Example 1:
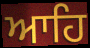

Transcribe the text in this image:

ਆਹਿ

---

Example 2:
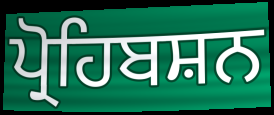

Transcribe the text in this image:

ਪ੍ਰੋਹਿਬਸ਼ਨ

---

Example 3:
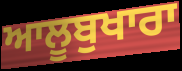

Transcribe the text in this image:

ਆਲੂਬੁਖਾਰਾ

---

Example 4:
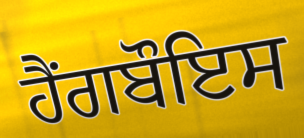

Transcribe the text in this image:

ਹੈਂਗਬੌਇਸ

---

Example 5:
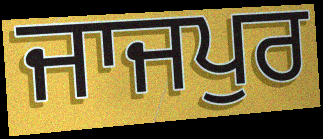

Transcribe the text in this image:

ਜਾਜਪੁਰ